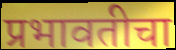
प्रभावतीचा